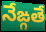
నేఙ్గతే